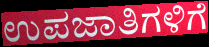
ಉಪಜಾತಿಗಳಿಗೆ